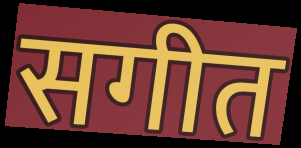
सगीत